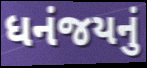
ધનંજયનું